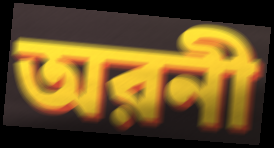
অরনী